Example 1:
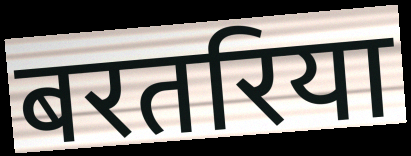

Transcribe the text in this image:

बरतरिया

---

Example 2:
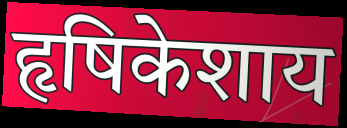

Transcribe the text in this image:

हृषिकेशाय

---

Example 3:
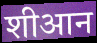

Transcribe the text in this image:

शीआन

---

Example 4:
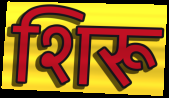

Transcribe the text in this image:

शिरू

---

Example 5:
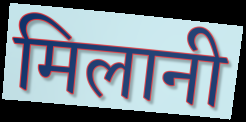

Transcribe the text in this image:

मिलानी